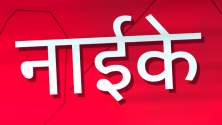
नाईके